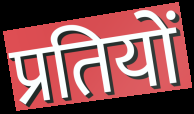
प्रतियों